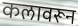
कलावरून